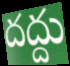
దద్దు